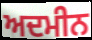
ਅਦਮੀਨ